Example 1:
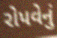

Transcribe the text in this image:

રોપવેનું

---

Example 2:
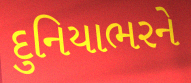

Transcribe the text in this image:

દુનિયાભરને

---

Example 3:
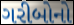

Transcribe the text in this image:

ગરીબોનો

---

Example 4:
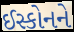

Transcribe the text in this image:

ઈસ્કોનને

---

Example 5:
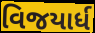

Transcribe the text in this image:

વિજયાર્ધ